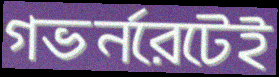
গভর্নরেটেই